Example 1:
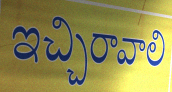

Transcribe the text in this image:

ఇచ్చిరావాలి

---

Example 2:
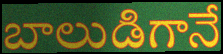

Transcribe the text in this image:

బాలుడిగానే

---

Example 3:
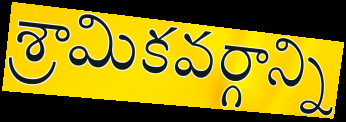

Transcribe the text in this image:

శ్రామికవర్గాన్ని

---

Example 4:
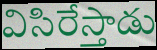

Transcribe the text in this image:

విసిరేస్తాడు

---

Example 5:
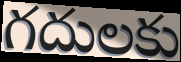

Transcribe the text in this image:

గదులకు